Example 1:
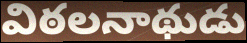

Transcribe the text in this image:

విఠలనాథుడు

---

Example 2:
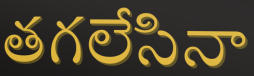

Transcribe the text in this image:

తగలేసినా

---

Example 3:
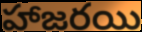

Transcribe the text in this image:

హాజరయి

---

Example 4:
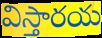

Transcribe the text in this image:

విస్తారయ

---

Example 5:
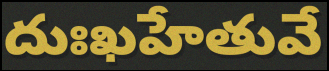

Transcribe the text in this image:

దుఃఖహేతువే